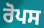
ਰੋਪਸ